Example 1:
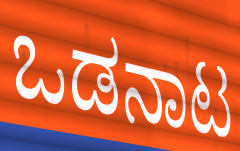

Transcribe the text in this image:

ಒಡನಾಟ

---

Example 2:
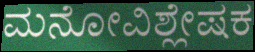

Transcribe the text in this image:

ಮನೋವಿಶ್ಲೇಷಕ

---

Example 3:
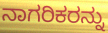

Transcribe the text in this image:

ನಾಗರಿಕರನ್ನು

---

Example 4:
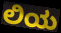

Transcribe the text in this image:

ಲಿಯ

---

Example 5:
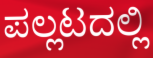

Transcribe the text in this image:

ಪಲ್ಲಟದಲ್ಲಿ